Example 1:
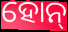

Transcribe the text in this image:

ହୋନ୍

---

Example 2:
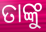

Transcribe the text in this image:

ତାଙ୍କୁ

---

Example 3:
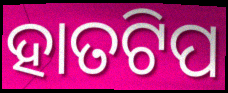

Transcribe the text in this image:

ହାତଟିପ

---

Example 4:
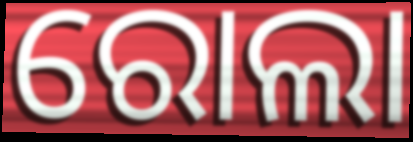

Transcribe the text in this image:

ରୋଲା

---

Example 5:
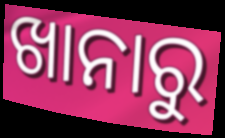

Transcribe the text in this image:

ଖାନାରୁ